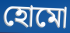
হোমো